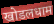
खोडलधाम